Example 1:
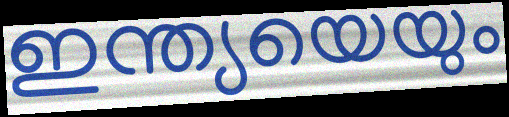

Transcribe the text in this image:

ഇന്ത്യയെയും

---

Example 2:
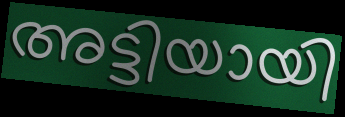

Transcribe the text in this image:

അട്ടിയായി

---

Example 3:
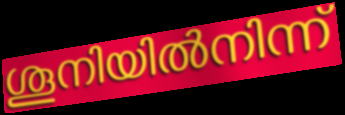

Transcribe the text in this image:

ശൂനിയിൽനിന്ന്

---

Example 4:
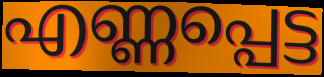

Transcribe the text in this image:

എണ്ണപ്പെട്ട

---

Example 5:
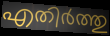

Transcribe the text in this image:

എതിർത്തു